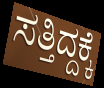
ಸತ್ತಿದ್ದಕ್ಕೆ